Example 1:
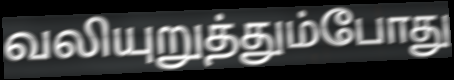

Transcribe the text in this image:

வலியுறுத்தும்போது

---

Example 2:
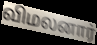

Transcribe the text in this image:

விமலனார்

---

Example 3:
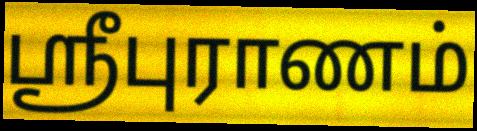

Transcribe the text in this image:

ஸ்ரீபுராணம்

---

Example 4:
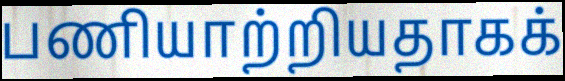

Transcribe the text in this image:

பணியாற்றியதாகக்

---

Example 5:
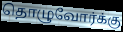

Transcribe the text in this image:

தொழுவோர்க்கு